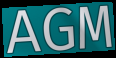
AGM